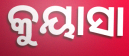
କୁୟାସା